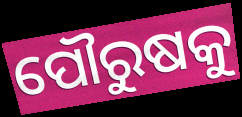
ପୌରୁଷକୁ